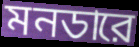
মনডারে